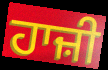
ਹਾਜ਼ੀ